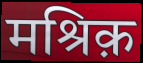
मश्रिक़